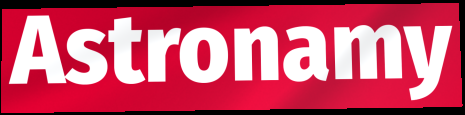
Astronamy